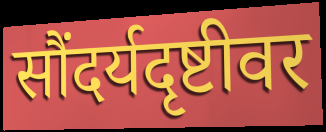
सौंदर्यदृष्टीवर